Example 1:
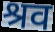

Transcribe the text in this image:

श्रव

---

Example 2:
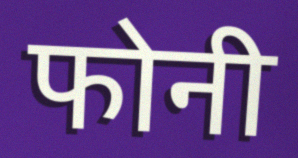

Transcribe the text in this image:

फोनी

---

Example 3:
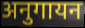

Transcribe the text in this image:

अनुगायन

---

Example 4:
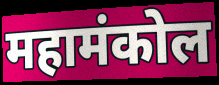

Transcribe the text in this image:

महामंकोल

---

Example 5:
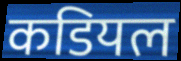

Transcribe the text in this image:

कडियल